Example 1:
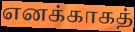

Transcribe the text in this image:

எனக்காகத்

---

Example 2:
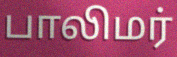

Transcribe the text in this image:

பாலிமர்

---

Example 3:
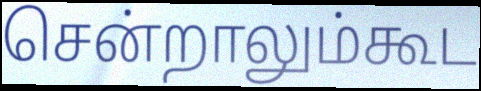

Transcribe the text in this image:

சென்றாலும்கூட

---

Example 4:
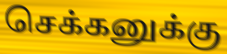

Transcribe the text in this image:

செக்கனுக்கு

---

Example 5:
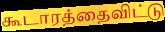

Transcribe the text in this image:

கூடாரத்தைவிட்டு